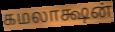
கமலாக்ஷன்